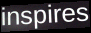
inspires